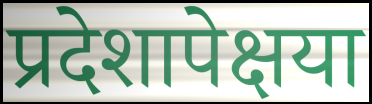
प्रदेशापेक्षया